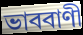
ভাববাণী